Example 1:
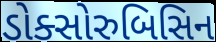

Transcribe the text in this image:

ડોક્સોરુબિસિન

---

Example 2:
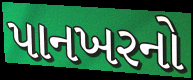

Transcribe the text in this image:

પાનખરનો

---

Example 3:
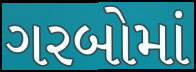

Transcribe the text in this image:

ગરબોમાં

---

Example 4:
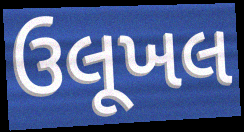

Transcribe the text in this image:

ઉલૂખલ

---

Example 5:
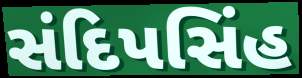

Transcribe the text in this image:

સંદિપસિંહ